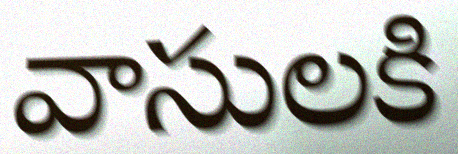
వాసులకి